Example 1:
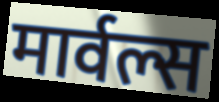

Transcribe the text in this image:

मार्वल्स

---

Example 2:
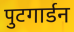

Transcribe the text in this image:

पुटगार्डन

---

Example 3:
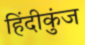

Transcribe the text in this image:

हिंदीकुंज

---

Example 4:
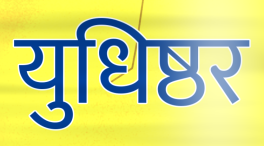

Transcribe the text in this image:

युधिष्ठर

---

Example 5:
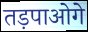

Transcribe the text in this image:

तड़पाओगे